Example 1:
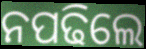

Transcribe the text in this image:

ନପଢିଲେ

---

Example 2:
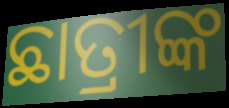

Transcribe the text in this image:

ଛାତ୍ରୀଙ୍କ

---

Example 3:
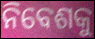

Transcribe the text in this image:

ନିବେଶକୁ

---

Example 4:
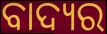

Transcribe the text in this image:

ବାଦ୍ୟର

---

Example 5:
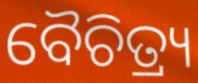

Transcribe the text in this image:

ବୈଚିତ୍ର୍ୟ